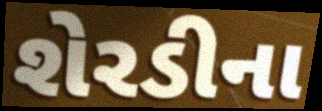
શેરડીના